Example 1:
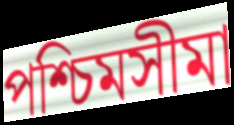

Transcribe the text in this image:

পশ্চিমসীমা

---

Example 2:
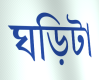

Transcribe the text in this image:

ঘড়িটা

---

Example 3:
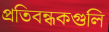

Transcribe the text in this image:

প্রতিবন্ধকগুলি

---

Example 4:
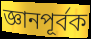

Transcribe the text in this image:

জ্ঞানপূর্বক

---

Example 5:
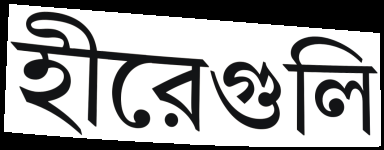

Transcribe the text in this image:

হীরেগুলি